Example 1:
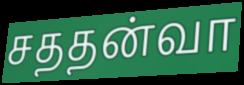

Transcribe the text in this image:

சததன்வா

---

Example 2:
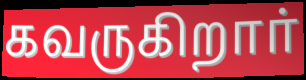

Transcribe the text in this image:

கவருகிறார்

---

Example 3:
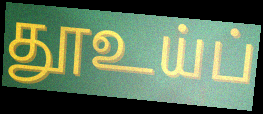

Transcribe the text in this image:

தூஉய்ப்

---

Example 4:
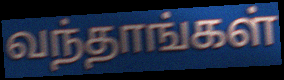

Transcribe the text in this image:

வந்தாங்கள்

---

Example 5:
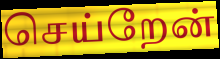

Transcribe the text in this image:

செய்றேன்